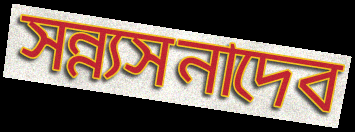
সন্ন্যসনাদেব